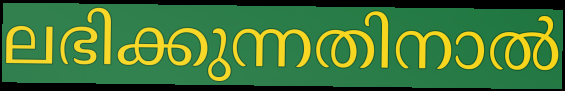
ലഭിക്കുന്നതിനാൽ